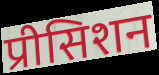
प्रीसिशन